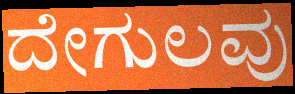
ದೇಗುಲವು